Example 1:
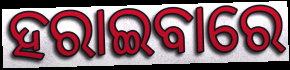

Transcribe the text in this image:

ହରାଇବାରେ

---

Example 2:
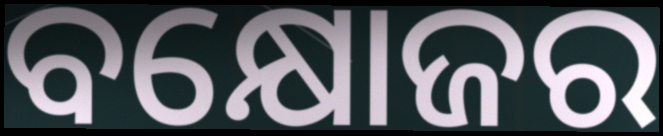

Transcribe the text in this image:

ବକ୍ଷୋଜର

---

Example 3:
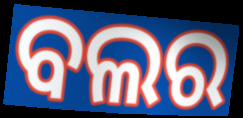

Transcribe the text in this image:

ବଲର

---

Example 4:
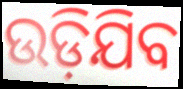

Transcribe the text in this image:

ଉଡ଼ିଯିବ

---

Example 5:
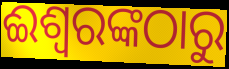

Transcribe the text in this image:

ଈଶ୍ଵରଙ୍କଠାରୁ